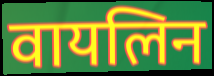
वायलिन